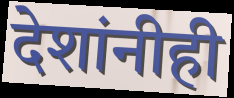
देशांनीही